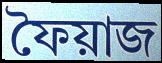
ফৈয়াজ